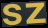
sz